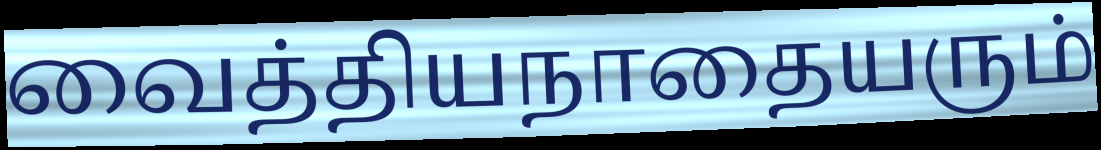
வைத்தியநாதையரும்